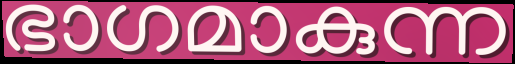
ഭാഗമാകുന്ന